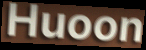
Huoon